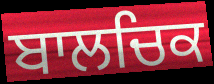
ਬਾਲਚਿਕ